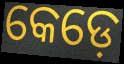
କେଡ଼େ